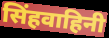
सिंहवाहिनी